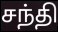
சந்தி